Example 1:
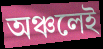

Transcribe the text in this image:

অঞ্চলেই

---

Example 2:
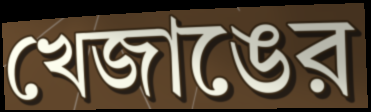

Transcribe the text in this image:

খেজাঙের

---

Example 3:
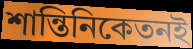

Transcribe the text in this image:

শান্তিনিকেতনই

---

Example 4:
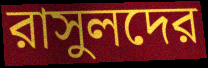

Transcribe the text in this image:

রাসুলদের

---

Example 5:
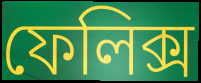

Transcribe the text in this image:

ফেলিক্স